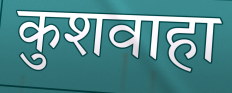
कुशवाहा